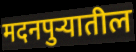
मदनपुऱ्यातील